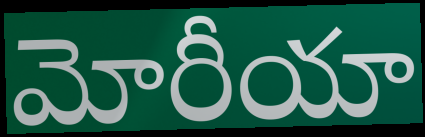
మోరీయా